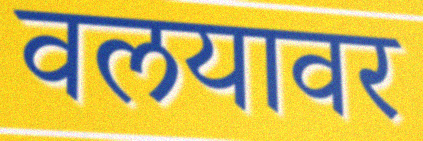
वलयावर